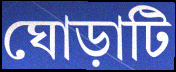
ঘোড়াটি